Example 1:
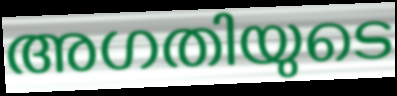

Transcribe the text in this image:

അഗതിയുടെ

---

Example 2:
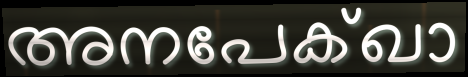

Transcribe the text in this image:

അനപേക്ഖാ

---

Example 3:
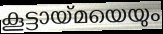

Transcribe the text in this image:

കൂട്ടായ്മയെയും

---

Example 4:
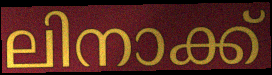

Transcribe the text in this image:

ലിനാക്ക്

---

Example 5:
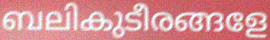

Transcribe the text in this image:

ബലികുടീരങ്ങളേ